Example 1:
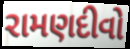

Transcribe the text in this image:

રામણદીવો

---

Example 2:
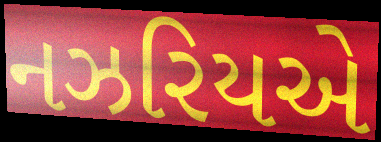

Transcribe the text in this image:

નઝરિયએ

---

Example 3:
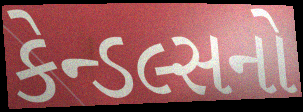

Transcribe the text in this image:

કેન્ડલ્સનો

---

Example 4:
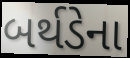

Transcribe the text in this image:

બર્થડેના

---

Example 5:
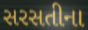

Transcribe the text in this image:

સરસતીના